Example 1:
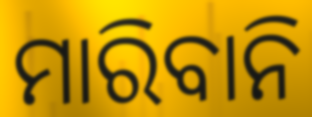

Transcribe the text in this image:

ମାରିବାନି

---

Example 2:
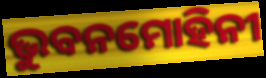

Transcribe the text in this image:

ଭୁବନମୋହିନୀ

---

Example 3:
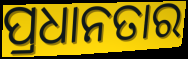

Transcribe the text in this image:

ପ୍ରଧାନତାର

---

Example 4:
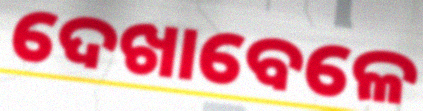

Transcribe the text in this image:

ଦେଖାବେଳେ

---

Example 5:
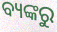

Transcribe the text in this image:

ବ୍ୟଙ୍କରୁ